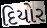
દિયોર